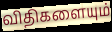
விதிகளையும்